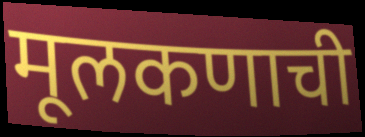
मूलकणाची